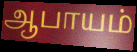
ஆபாயம்